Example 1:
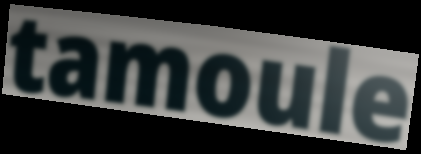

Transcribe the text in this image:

tamoule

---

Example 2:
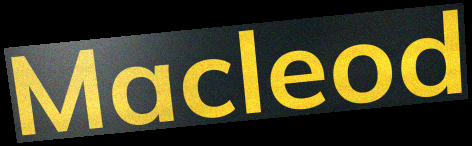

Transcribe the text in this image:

Macleod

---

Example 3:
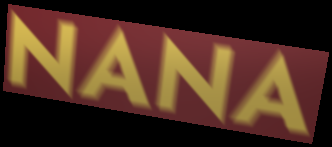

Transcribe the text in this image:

NANA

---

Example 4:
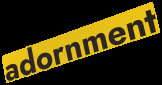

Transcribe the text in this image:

adornment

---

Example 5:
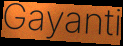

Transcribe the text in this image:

Gayanti